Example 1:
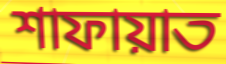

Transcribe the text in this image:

শাফায়াত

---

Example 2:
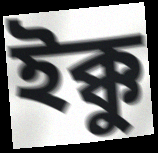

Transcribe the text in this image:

ইক্কু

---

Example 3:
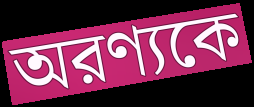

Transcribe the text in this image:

অরণ্যকে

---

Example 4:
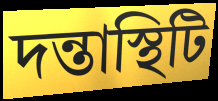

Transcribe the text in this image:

দন্তাস্থিটি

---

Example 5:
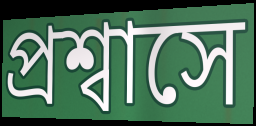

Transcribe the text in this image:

প্রশ্বাসে